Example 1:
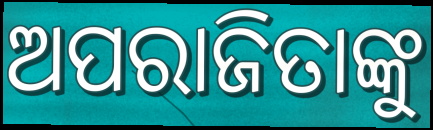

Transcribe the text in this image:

ଅପରାଜିତାଙ୍କୁ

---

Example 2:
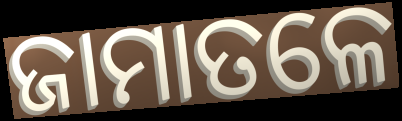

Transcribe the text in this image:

ଜାମାତଳେ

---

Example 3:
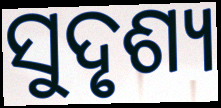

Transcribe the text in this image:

ସୁଦୃଶ୍ଯ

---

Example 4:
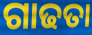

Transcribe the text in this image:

ଗାଢତା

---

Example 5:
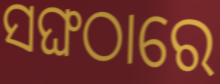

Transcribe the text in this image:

ସଙ୍ଘଠାରେ